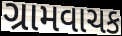
ગ્રામવાચક